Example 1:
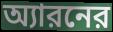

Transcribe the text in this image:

অ্যারনের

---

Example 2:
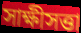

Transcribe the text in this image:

সাক্ষীসত্তা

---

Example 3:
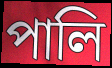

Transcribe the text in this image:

পালি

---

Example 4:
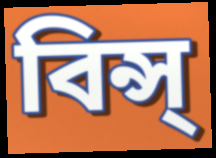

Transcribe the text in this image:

বিন্স্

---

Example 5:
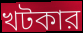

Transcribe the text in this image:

খটকার